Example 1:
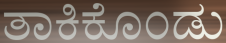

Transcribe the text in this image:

ತಾಕಿಕೊಂಡು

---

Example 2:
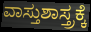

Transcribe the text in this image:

ವಾಸ್ತುಶಾಸ್ತ್ರಕ್ಕೆ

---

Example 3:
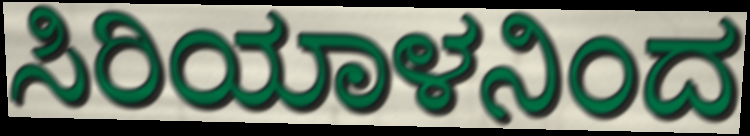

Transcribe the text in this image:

ಸಿರಿಯಾಳನಿಂದ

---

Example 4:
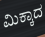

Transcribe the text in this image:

ಮಿಕ್ಕಾದ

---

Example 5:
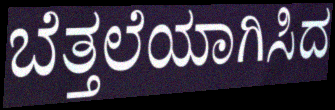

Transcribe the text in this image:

ಬೆತ್ತಲೆಯಾಗಿಸಿದ